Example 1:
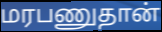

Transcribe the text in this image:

மரபணுதான்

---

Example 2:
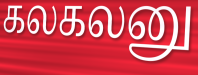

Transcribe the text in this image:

கலகலனு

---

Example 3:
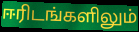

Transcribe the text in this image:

ஈரிடங்களிலும்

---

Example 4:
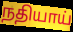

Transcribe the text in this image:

நதியாய்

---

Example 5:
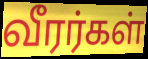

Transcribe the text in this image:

வீரர்கள்